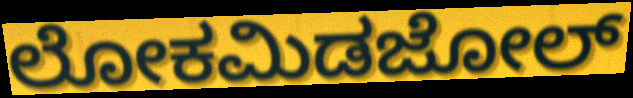
ಲೋಕಮಿಡಜೋಲ್